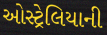
ઓસ્ટ્રેલિયાની